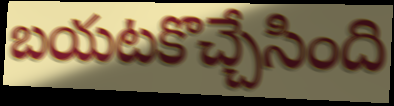
బయటకొచ్చేసింది